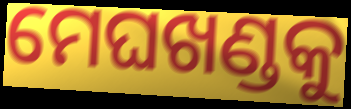
ମେଘଖଣ୍ଡକୁ